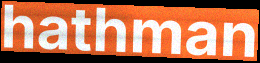
hathman